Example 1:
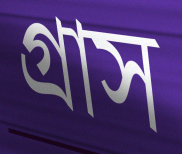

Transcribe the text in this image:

গ্রাস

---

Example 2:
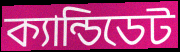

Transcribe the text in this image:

ক্যান্ডিডেট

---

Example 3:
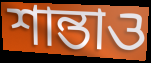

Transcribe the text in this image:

শান্তাও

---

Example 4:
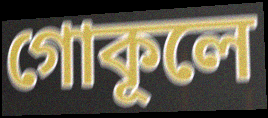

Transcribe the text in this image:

গোকূলে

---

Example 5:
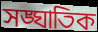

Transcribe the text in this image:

সঙ্ঘাতিক